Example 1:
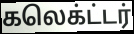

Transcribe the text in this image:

கலெக்ட்டர்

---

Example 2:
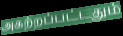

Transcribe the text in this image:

அகற்றப்பட்டதும்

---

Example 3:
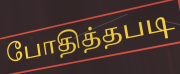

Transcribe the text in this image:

போதித்தபடி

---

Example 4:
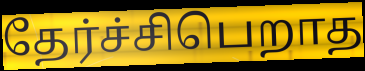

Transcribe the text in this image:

தேர்ச்சிபெறாத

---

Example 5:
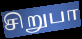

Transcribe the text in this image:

சிறுபா